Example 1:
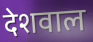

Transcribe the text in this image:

देशवाल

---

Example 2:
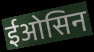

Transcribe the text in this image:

ईओसिन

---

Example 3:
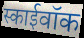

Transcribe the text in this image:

स्काईवॉक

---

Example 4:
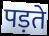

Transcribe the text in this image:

पड़ते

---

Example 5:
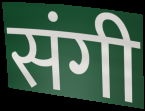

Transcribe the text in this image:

संगी